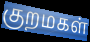
குறமகள்